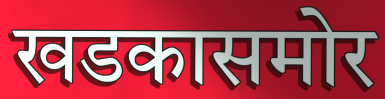
खडकासमोर